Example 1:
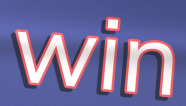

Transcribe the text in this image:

win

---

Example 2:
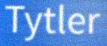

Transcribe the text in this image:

Tytler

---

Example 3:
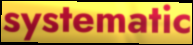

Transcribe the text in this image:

systematic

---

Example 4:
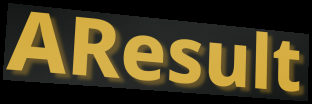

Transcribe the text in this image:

AResult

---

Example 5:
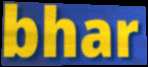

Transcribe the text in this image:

bhar